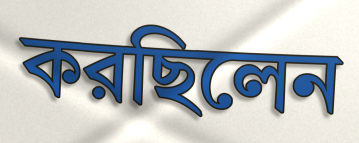
করছিলেন